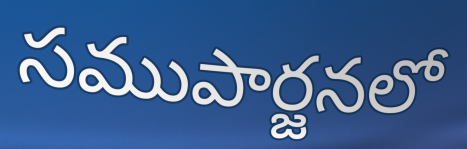
సముపార్జనలో